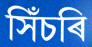
সিঁচৰি